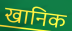
खानिक